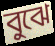
বুঝে